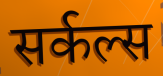
सर्कल्स